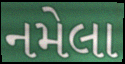
નમેલા